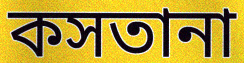
কসতানা